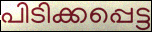
പിടിക്കപ്പെട്ട